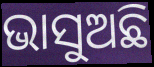
ଭାସୁଅଛି